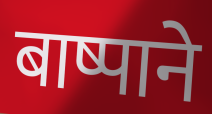
बाष्पाने